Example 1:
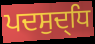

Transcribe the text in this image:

ਪਦਸੁਦ੍ਧਿ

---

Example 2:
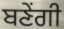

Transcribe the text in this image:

ਬਣੇਂਗੀ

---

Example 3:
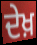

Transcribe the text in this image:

ਦੇਖ਼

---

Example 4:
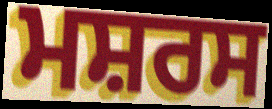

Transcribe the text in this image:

ਮਸ਼ਰਸ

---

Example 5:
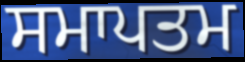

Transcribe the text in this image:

ਸਮਾਪਤਮ